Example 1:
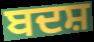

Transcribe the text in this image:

ਬਦਸ਼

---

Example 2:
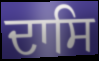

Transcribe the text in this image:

ਦਾਸਿ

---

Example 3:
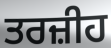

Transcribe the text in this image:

ਤਰਜ਼ੀਹ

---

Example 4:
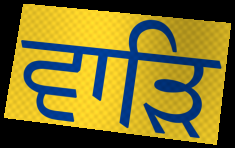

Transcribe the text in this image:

ਵਾੜਿ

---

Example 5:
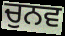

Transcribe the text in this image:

ਚੁਨਵ